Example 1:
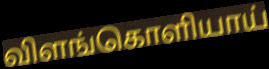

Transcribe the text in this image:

விளங்கொளியாய்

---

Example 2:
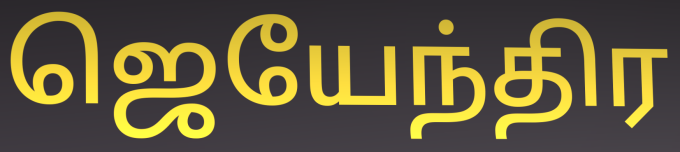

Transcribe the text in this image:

ஜெயேந்திர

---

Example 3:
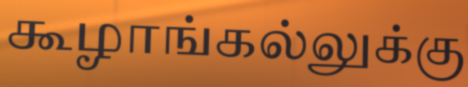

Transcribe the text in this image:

கூழாங்கல்லுக்கு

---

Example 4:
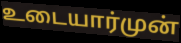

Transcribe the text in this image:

உடையார்முன்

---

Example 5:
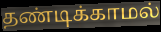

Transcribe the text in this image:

தண்டிக்காமல்